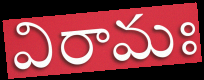
విరామః